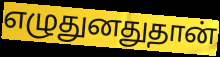
எழுதுனதுதான்